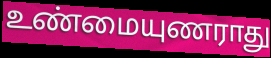
உண்மையுணராது